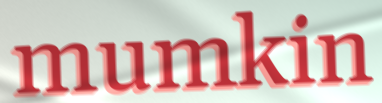
mumkin